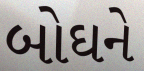
બોઘને